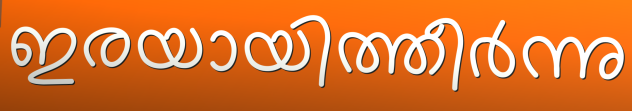
ഇരയായിത്തീർന്നു